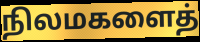
நிலமகளைத்